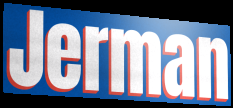
Jerman